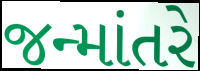
જન્માંતરે